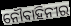
ନୌବାହିନୀର